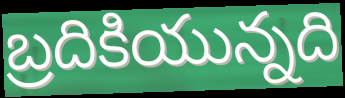
బ్రదికియున్నది